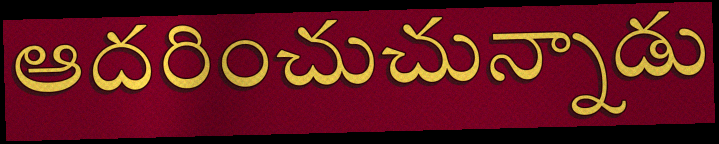
ఆదరించుచున్నాడు